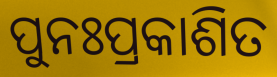
ପୁନଃପ୍ରକାଶିତ